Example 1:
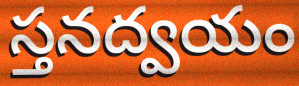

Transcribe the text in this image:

స్తనద్వయం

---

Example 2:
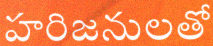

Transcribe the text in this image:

హరిజనులతో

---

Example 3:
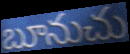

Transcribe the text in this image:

బూనుచు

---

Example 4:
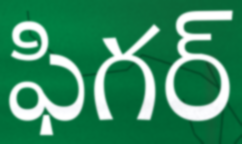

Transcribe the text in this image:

ఫిగర్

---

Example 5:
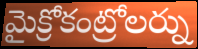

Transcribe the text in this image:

మైక్రోకంట్రోలర్ను